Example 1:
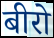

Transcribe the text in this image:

बीरो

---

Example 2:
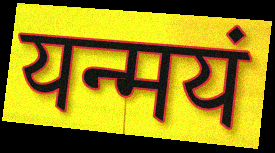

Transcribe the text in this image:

यन्मयं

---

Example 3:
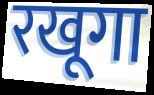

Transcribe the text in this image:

रखूगा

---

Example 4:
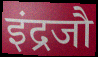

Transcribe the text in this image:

इंद्रजौ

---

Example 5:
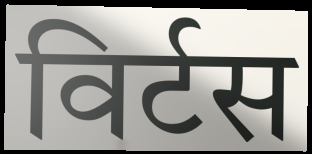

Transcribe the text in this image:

विर्टस